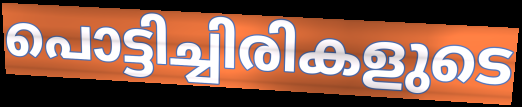
പൊട്ടിച്ചിരികളുടെ